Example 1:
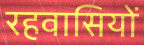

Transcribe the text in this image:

रहवासियों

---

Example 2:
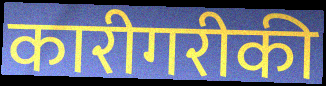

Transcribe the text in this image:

कारीगरीकी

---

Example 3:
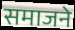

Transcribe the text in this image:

समाजने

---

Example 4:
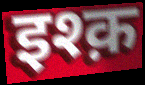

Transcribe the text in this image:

इश्क़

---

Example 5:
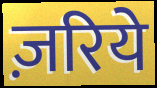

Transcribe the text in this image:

ज़रिये